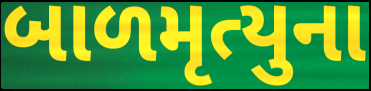
બાળમૃત્યુના